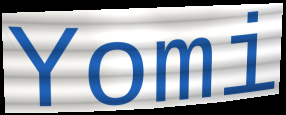
Yomi